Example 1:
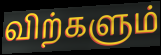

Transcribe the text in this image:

விற்களும்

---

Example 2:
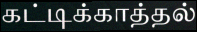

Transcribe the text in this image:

கட்டிக்காத்தல்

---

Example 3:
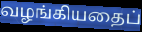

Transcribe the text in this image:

வழங்கியதைப்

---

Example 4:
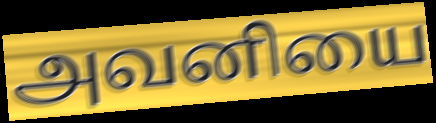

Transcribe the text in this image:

அவனியை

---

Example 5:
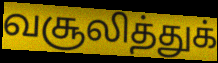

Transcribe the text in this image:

வசூலித்துக்